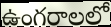
ఉంగరాలలో